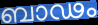
ബാഢം